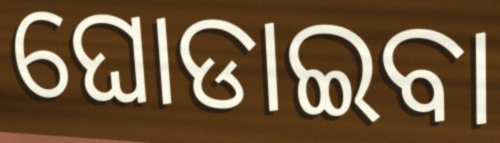
ଘୋଡାଇବା